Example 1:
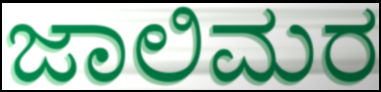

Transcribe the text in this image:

ಜಾಲಿಮರ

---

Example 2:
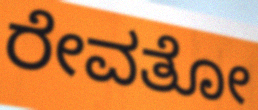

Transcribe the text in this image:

ರೇವತೋ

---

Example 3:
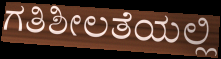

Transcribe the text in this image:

ಗತಿಶೀಲತೆಯಲ್ಲಿ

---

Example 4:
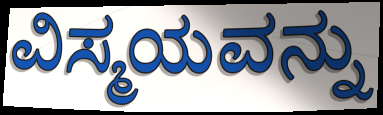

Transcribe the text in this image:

ವಿಸ್ಮಯವನ್ನು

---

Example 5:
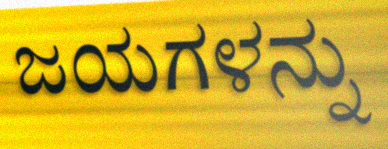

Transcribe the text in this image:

ಜಯಗಳನ್ನು